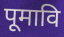
पूमावि